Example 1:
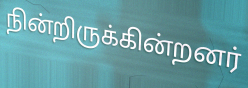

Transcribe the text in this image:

நின்றிருக்கின்றனர்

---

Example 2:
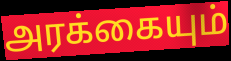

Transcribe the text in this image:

அரக்கையும்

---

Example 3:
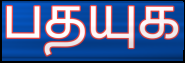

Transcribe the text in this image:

பதயுக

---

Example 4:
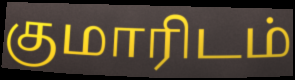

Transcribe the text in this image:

குமாரிடம்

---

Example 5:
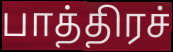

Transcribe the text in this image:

பாத்திரச்